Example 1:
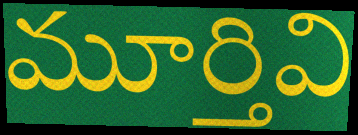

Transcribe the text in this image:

మూర్తివి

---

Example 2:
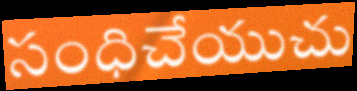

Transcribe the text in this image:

సంధిచేయుచు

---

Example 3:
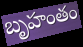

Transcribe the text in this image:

బృహంతం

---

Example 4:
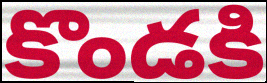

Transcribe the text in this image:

కొండకి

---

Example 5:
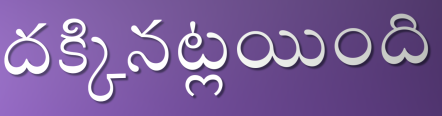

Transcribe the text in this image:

దక్కినట్లయింది